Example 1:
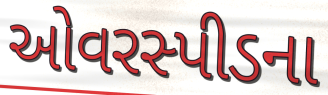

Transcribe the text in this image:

ઓવરસ્પીડના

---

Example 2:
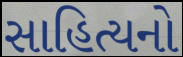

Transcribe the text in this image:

સાહિત્યનો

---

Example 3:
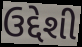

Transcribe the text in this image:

ઉદ્દેશી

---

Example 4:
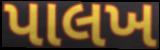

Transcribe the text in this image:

પાલખ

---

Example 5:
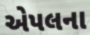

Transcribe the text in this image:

એપલના